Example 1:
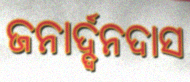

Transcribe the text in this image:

ଜନାର୍ଦ୍ଦନଦାସ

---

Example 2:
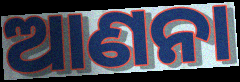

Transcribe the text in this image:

ଆଣନା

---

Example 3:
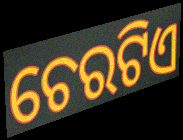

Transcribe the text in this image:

ଚେରଟିଏ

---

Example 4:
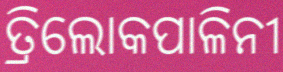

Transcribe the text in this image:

ତ୍ରିଲୋକପାଳିନୀ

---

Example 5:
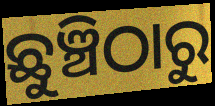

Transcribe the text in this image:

ଛୁଞ୍ଚିଠାରୁ